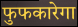
फुफकारेगा